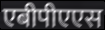
एबीपीएएस